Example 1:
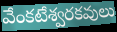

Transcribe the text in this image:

వేంకటేశ్వరకవులు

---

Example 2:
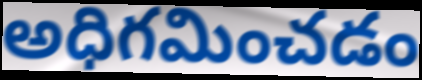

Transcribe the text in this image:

అధిగమించడం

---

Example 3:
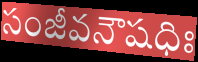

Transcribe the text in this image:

సంజీవనౌషధిః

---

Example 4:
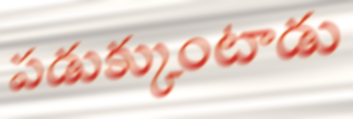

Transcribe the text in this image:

పడుక్కుంటాడు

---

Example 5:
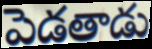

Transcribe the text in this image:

పెడతాడు